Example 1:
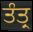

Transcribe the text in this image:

ਤੰਤ੍ਰ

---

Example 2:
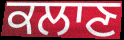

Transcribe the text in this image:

ਕਲਾਣ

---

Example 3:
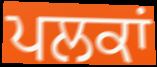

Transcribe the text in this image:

ਪਲਕਾਂ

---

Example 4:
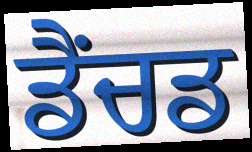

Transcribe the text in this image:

ਡੈਂਚਡ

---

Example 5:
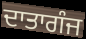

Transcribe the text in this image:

ਦਾਤਾਗੰਜ